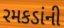
રમકડાંની